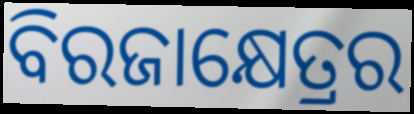
ବିରଜାକ୍ଷେତ୍ରର